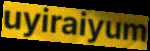
uyiraiyum